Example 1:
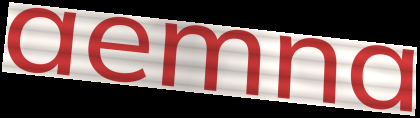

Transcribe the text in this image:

aemna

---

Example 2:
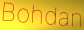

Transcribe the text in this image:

Bohdan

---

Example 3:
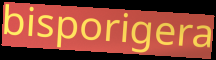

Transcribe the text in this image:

bisporigera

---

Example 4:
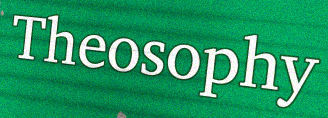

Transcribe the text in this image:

Theosophy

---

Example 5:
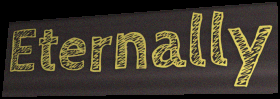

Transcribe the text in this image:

Eternally